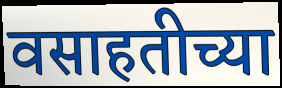
वसाहतीच्या